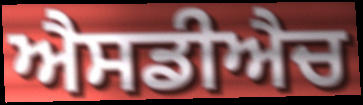
ਐਸਡੀਐਚ